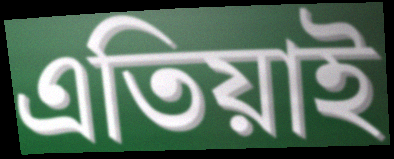
এতিয়াই